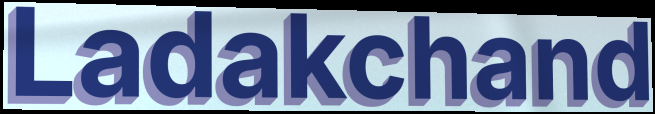
Ladakchand